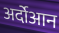
अर्दोआन